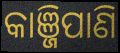
କାଞ୍ଜିପାଣି